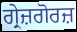
ਗ੍ਰੇਜ਼ਗੋਰਜ਼